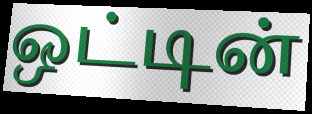
ஒட்டின்